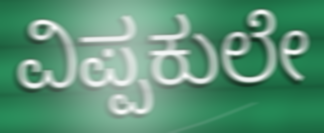
ವಿಪ್ಪಕುಲೇ